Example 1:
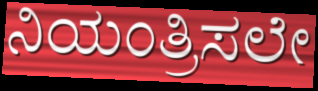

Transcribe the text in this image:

ನಿಯಂತ್ರಿಸಲೇ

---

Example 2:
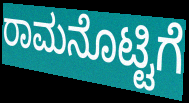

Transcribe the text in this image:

ರಾಮನೊಟ್ಟಿಗೆ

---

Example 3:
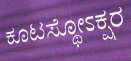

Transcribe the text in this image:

ಕೂಟಸ್ಥೋಽಕ್ಷರ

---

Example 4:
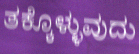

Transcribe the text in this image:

ತಕ್ಕೊಳ್ಳುವುದು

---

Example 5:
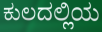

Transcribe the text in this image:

ಕುಲದಲ್ಲಿಯ